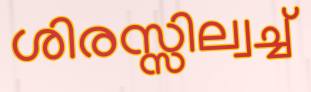
ശിരസ്സില്വച്ച്